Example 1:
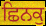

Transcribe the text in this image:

ਛਿਨਕੁ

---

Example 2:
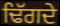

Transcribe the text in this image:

ਢਿੱਗਦੇ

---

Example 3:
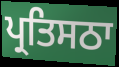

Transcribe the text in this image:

ਪ੍ਰਤਿਸਠਾ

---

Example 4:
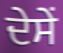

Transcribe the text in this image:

ਦੇਸੇਂ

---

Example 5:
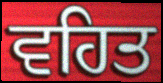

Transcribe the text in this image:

ਵਹਿਤ